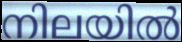
നിലയിൽ